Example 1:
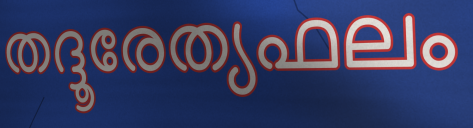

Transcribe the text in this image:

തദ്ദൂരേത്യഫലം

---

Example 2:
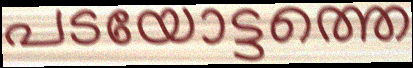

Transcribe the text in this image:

പടയോട്ടത്തെ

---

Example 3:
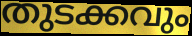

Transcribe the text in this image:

തുടക്കവും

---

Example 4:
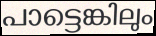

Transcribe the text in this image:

പാട്ടെങ്കിലും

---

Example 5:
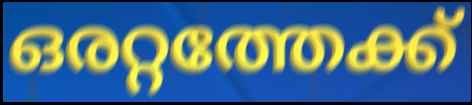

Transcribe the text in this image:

ഒരറ്റത്തേക്ക്